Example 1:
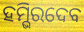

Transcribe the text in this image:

ହମ୍ଭିରଦେବ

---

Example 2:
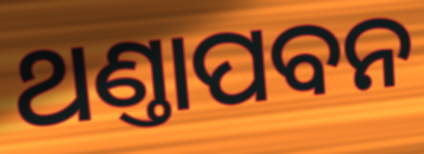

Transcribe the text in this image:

ଥଣ୍ତାପବନ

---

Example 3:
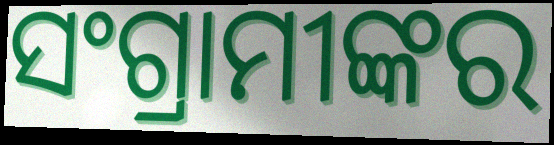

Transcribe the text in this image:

ସଂଗ୍ରାମୀଙ୍କର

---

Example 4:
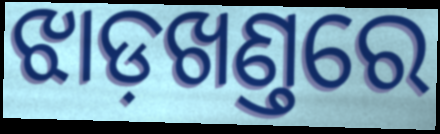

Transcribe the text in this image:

ଝାଡ଼ଖଣ୍ତରେ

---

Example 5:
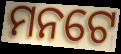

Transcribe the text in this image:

ମନଟେ